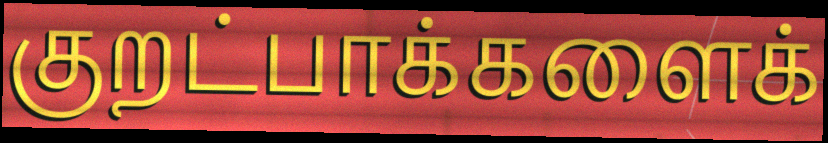
குறட்பாக்களைக்